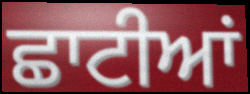
ਛਾਟੀਆਂ